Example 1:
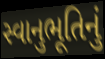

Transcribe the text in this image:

સ્વાનુભૂતિનું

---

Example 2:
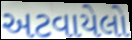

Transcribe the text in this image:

અટવાયેલો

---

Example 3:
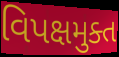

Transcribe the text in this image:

વિપક્ષમુક્ત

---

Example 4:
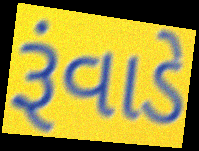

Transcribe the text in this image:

રૂંવાડે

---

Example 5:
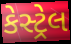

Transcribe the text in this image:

કેસ્ટ્રેલ